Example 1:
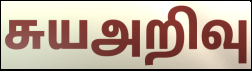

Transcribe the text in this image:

சுயஅறிவு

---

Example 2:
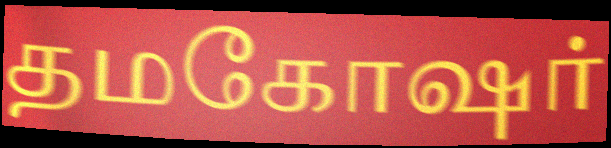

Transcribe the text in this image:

தமகோஷர்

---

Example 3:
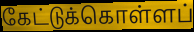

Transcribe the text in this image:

கேட்டுக்கொள்ளப்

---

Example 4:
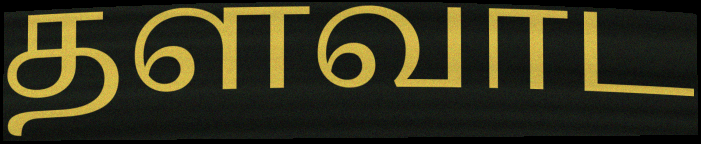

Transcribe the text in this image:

தளவாட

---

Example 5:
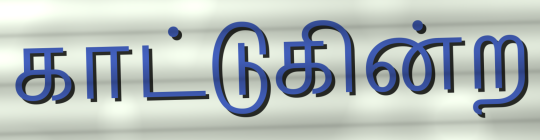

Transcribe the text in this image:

காட்டுகின்ற